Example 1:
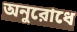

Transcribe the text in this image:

অনুরোধে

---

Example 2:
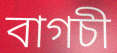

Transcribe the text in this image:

বাগচী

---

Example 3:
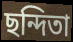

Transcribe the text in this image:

ছন্দিতা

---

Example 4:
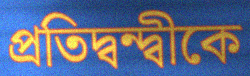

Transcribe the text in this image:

প্রতিদ্বন্দ্বীকে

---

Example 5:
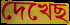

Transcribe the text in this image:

দেখেছ